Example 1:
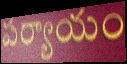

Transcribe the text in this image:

పర్యాయం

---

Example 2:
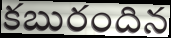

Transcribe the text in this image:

కబురందిన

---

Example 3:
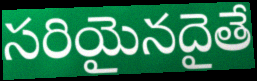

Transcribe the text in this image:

సరియైనదైతే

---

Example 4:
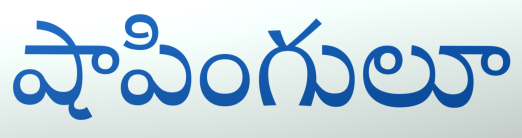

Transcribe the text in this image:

షాపింగులూ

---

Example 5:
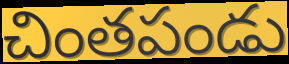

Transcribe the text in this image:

చింతపండు